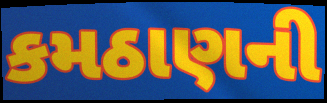
કમઠાણની